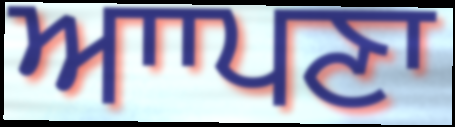
ਆਾਪਣਾ